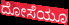
ದೋಸೆಯೂ